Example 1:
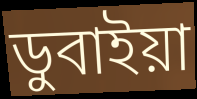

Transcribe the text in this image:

ডুবাইয়া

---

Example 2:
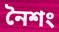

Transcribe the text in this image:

নৈশং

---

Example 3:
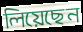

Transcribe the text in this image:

লিয়েছেন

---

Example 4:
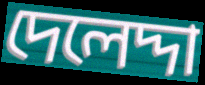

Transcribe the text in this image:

দেলেদ্দা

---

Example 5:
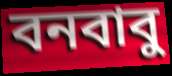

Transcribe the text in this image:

বনবাবু